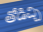
తోడిచ్చి